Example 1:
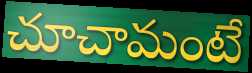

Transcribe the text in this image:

చూచామంటే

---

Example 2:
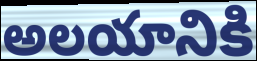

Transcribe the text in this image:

అలయానికి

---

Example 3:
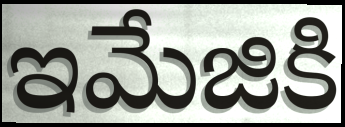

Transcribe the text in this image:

ఇమేజికి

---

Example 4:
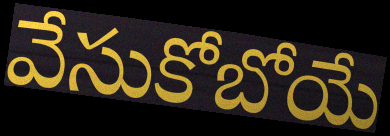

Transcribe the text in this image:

వేసుకోబోయే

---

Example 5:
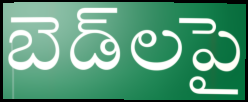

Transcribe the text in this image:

బెడ్‌లపై